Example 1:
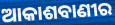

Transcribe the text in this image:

ଆକାଶବାଣୀର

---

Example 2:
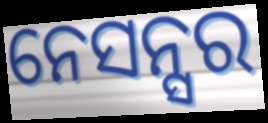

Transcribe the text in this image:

ନେସନ୍ସର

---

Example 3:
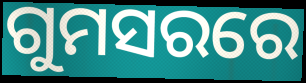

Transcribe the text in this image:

ଗୁମସରରେ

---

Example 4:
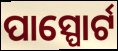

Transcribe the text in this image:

ପାସ୍ପୋର୍ଟ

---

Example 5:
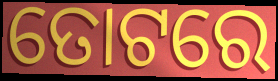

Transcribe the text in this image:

ତୋଟରେ